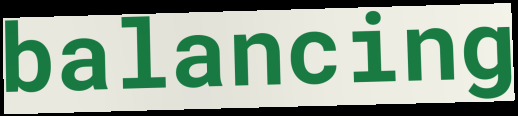
balancing